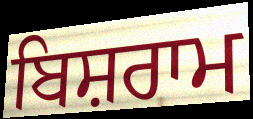
ਬਿਸ਼ਰਾਮ